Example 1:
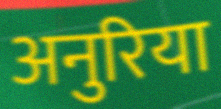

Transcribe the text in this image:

अनुरिया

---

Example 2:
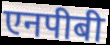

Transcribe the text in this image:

एनपीबी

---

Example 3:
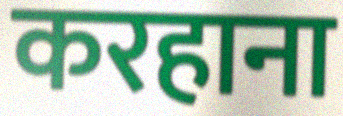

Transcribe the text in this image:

करहाना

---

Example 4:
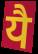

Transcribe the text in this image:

यै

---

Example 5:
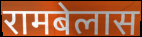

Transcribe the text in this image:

रामबेलास